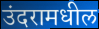
उंदरामधील